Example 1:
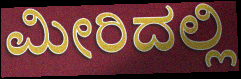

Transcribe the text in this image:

ಮೀರಿದಲ್ಲಿ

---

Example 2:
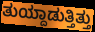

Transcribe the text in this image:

ತುಯ್ದಾಡುತ್ತಿತ್ತು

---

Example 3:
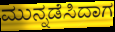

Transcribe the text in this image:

ಮುನ್ನಡೆಸಿದಾಗ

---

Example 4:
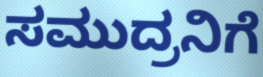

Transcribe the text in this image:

ಸಮುದ್ರನಿಗೆ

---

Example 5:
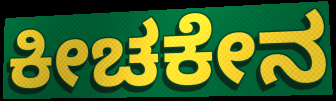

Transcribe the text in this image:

ಕೀಚಕೇನ